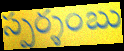
స్పర్శంబు